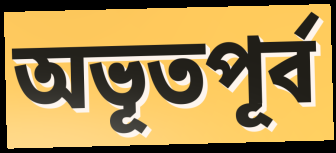
অভূতপূর্ব